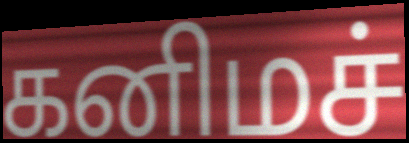
கனிமச்